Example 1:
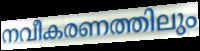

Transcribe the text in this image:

നവീകരണത്തിലും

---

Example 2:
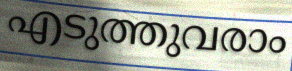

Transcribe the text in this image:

എടുത്തുവരാം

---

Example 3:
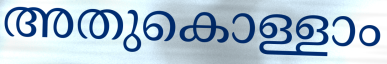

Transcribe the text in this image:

അതുകൊള്ളാം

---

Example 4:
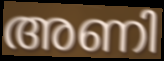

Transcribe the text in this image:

അണി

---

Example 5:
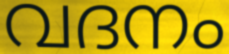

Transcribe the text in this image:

വദനം